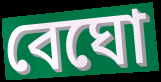
বেঘো